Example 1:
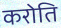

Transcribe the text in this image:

करोति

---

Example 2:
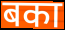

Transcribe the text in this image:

बका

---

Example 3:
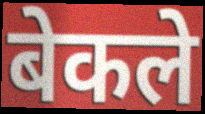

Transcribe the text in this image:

बेकले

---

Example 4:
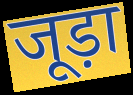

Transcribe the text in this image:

जूड़ा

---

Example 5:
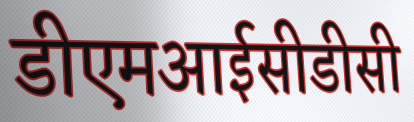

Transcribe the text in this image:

डीएमआईसीडीसी